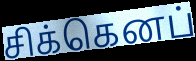
சிக்கெனப்